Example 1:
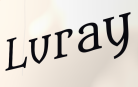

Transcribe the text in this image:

Luray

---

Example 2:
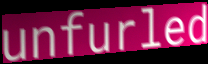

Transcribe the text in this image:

unfurled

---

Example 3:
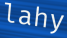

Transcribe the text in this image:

lahy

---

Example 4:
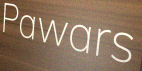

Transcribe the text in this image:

Pawars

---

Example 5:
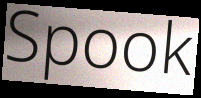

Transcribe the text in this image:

Spook